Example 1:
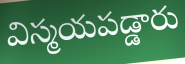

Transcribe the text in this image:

విస్మయపడ్డారు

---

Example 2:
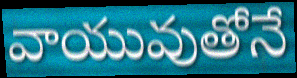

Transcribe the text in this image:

వాయువుతోనే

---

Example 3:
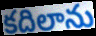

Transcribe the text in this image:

కదిలాను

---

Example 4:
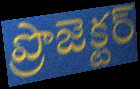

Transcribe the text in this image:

ప్రొజెక్టర్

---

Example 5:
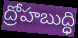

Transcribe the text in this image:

ద్రోహబుద్ధి